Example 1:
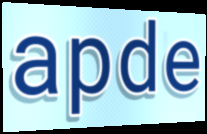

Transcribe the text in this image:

apde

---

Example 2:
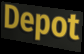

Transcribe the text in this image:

Depot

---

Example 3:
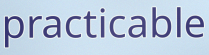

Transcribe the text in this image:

practicable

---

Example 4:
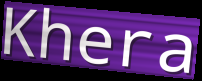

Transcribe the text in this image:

Khera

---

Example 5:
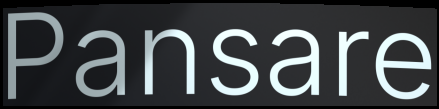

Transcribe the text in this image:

Pansare